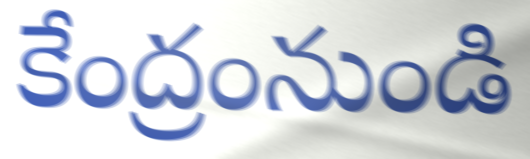
కేంద్రంనుండి